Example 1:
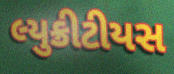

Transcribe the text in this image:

લ્યુક્રીટીયસ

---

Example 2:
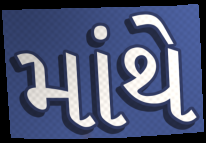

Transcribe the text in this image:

માંથે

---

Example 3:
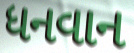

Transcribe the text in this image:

ધનવાન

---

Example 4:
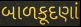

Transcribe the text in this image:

બાળકૂદણાં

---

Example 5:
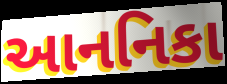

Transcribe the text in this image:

આનનિકા